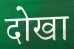
दोखा